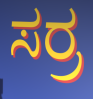
ಸರ್ರ